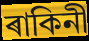
ৰাকিনী